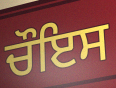
ਚੌਇਸ